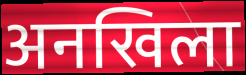
अनखिला